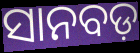
ସାନବଡ଼